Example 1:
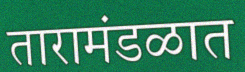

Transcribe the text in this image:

तारामंडळात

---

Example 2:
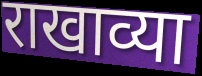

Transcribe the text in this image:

राखाव्या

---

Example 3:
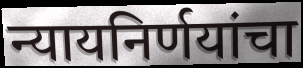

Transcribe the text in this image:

न्यायनिर्णयांचा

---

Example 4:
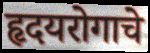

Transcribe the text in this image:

हृदयरोगाचे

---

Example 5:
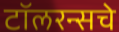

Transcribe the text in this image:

टॉलरन्सचे